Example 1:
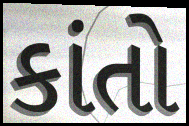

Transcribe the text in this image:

કાંતો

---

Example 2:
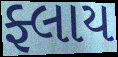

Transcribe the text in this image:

ફ્લાય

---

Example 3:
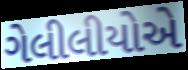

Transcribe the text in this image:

ગેલીલીયોએ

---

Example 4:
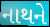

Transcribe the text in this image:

નાથને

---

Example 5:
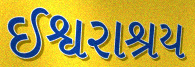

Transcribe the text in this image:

ઈશ્વરાશ્રય